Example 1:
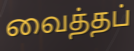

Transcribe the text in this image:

வைத்தப்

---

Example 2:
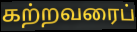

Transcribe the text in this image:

கற்றவரைப்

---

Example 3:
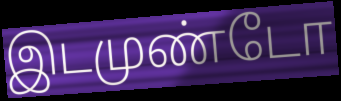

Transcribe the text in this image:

இடமுண்டோ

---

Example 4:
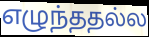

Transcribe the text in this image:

எழுந்ததல்ல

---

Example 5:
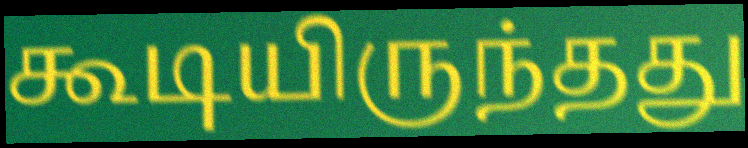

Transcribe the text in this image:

கூடியிருந்தது